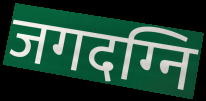
जगदग्नि